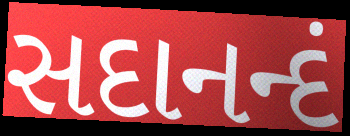
સદાનન્દં